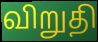
விறுதி